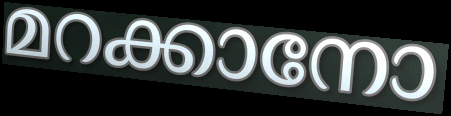
മറക്കാനോ